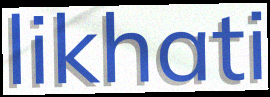
likhati